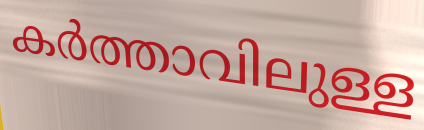
കർത്താവിലുള്ള